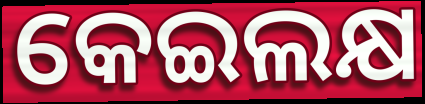
କେଇଲକ୍ଷ